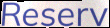
Reserv